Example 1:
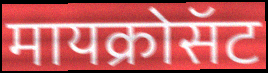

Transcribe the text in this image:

मायक्रोसॅट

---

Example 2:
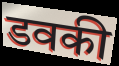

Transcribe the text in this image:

डवकी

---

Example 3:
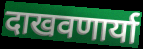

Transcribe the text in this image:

दाखवणार्या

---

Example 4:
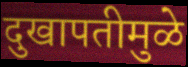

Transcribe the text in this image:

दुखापतीमुळे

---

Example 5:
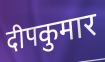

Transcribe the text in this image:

दीपकुमार